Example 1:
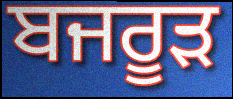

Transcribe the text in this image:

ਬਜਰੂੜ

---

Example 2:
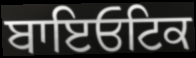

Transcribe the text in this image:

ਬਾਇਓਟਿਕ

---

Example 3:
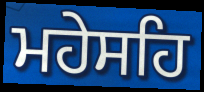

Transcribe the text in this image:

ਮਹੇਸਹਿ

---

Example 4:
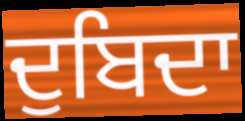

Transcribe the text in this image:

ਦੁਬਿਦਾ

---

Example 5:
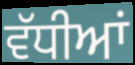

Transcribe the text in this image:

ਵੱਧੀਆਂ